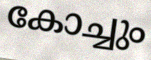
കോച്ചും